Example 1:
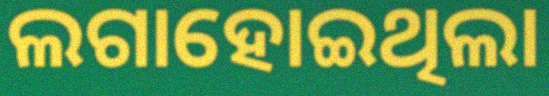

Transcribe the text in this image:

ଲଗାହୋଇଥିଲା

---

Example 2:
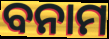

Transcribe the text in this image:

ବନାମ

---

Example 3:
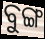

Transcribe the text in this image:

ବୁଙ୍ଗ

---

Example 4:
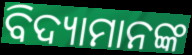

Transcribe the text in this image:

ବିଦ୍ୟାମାନଙ୍କ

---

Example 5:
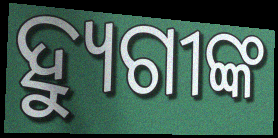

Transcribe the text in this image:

ହ୍ୟୁଗୀଙ୍କ